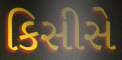
કિસીસે